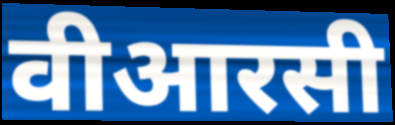
वीआरसी